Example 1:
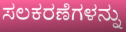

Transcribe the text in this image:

ಸಲಕರಣೆಗಳನ್ನು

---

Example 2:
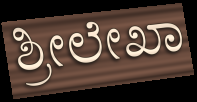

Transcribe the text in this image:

ಶ್ರೀಲೇಖಾ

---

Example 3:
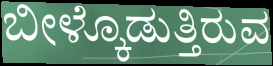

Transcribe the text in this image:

ಬೀಳ್ಕೊಡುತ್ತಿರುವ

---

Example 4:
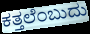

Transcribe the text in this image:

ಕತ್ತಲೆಂಬುದು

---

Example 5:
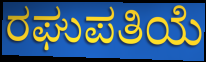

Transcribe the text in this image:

ರಘುಪತಿಯೆ